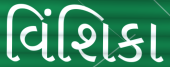
વિંશિકા